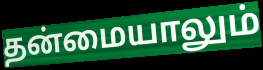
தன்மையாலும்